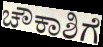
ಚೌಕಾಶಿಗೆ